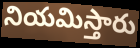
నియమిస్తారు